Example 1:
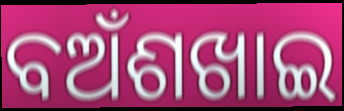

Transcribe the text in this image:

ବଅଁଶଖାଇ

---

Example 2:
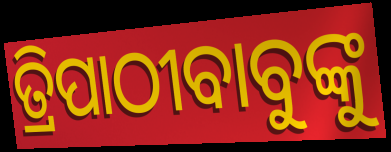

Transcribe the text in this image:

ତ୍ରିପାଠୀବାବୁଙ୍କୁ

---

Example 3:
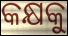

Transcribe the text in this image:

କକ୍ଷକୁ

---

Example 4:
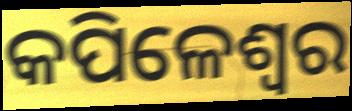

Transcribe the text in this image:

କପିଳେଶ୍ଵର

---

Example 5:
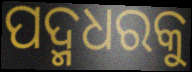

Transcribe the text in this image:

ପଦ୍ମଧରକୁ